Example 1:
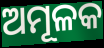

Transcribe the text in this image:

ଅମୂଳକ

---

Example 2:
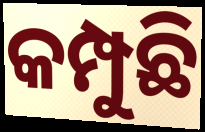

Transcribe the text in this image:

କମ୍ପୁଛି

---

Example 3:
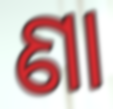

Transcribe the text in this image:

ଣା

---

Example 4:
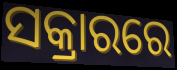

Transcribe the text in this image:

ସକ୍ରାରରେ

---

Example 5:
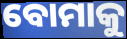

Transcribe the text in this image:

ବୋମାକୁ